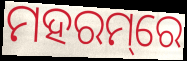
ମହରମ୍‌ରେ